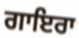
ਗਾਇਰਾ